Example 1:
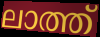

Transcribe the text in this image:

ലാത്ത്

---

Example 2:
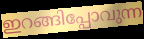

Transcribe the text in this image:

ഇറങ്ങിപ്പോവുന്ന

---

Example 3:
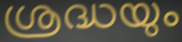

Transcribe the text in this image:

ശ്രദ്ധയും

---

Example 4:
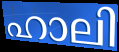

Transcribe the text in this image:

ഹാലി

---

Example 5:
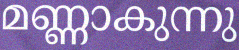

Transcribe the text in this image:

മണ്ണാകുന്നു